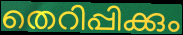
തെറിപ്പിക്കും